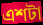
এশটা